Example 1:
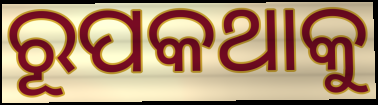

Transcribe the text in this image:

ରୂପକଥାକୁ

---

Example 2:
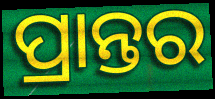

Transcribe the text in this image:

ପ୍ରାନ୍ତର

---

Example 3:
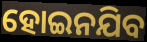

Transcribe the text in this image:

ହୋଇନଯିବ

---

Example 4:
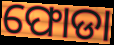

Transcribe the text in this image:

ଫୋଡା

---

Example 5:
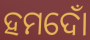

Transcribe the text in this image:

ହମଦୋଁ